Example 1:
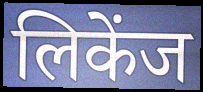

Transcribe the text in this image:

लिकेंज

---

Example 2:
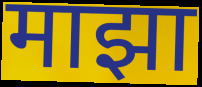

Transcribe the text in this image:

माझा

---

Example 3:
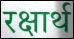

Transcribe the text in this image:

रक्षार्थ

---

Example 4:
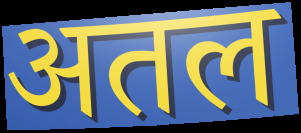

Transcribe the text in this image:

अतल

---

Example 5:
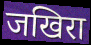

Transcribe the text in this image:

जखिरा